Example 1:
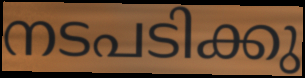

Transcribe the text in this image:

നടപടിക്കു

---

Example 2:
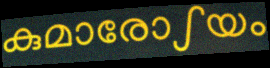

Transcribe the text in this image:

കുമാരോഽയം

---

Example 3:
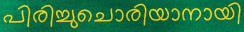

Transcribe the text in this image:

പിരിച്ചുചൊരിയാനായി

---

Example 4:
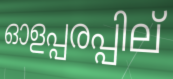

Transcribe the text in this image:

ഓളപ്പരപ്പില്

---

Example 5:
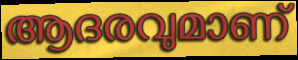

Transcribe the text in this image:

ആദരവുമാണ്